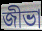
জীভা